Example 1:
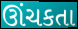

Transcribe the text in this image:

ઊંચકતા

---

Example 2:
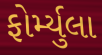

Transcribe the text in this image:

ફોર્મ્યુલા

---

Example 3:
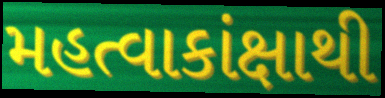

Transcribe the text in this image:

મહત્વાકાંક્ષાથી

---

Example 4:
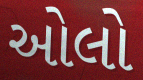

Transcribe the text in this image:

ઓલો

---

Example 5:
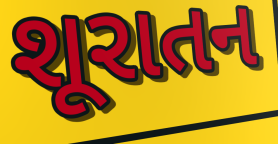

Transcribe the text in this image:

શૂરાતન